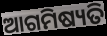
ଆଗମିଷ୍ୟତି